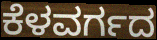
ಕೆಳವರ್ಗದ